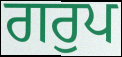
ਗਰੁਪ